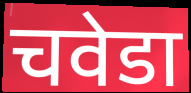
चवेडा